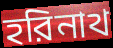
হরিনাথ